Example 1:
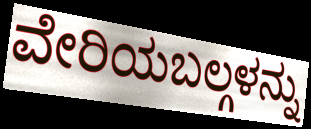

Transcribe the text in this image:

ವೇರಿಯಬಲ್ಗಳನ್ನು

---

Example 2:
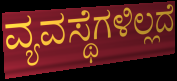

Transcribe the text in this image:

ವ್ಯವಸ್ಥೆಗಳಿಲ್ಲದೆ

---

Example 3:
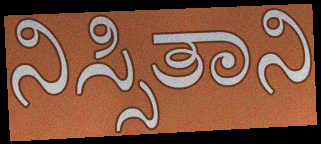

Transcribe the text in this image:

ನಿಸ್ಸಿತಾನಿ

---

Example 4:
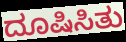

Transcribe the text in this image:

ದೂಷಿಸಿತು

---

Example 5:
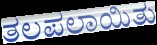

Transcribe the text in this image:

ತಲಪಲಾಯಿತು